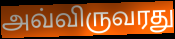
அவ்விருவரது